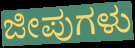
ಜೀಪುಗಳು